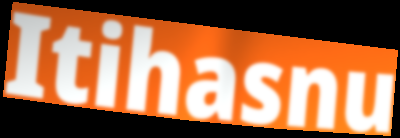
Itihasnu